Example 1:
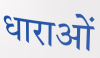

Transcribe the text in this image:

धाराओं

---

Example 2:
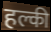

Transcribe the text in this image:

हल्की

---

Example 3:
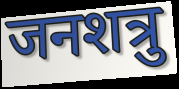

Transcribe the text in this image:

जनशत्रु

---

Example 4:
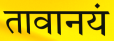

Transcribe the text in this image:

तावानयं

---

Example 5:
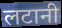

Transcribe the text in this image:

लटानी